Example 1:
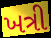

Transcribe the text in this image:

ખત્રી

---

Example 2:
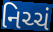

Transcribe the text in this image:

નિચ્ચં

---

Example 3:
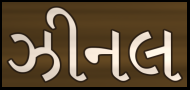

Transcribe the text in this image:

ઝીનલ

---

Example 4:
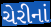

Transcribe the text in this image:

ચેરીનાં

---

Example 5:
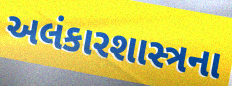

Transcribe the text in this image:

અલંકારશાસ્ત્રના